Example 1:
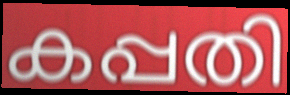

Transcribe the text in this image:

കപ്പതി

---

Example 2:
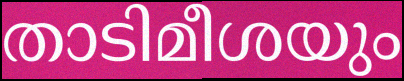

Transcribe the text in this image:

താടിമീശയും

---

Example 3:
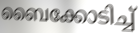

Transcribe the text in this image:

ബൈക്കോടിച്ച്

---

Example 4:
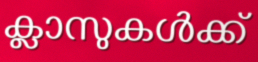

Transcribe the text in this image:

ക്ലാസുകൾക്ക്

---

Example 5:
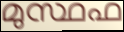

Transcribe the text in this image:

മുസ്ഥഫ